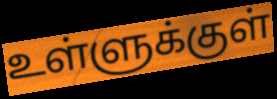
உள்ளுக்குள்